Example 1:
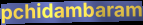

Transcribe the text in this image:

pchidambaram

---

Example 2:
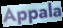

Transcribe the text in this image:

Appala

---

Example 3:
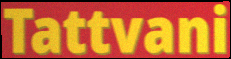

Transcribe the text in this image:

Tattvani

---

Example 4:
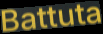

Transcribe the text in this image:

Battuta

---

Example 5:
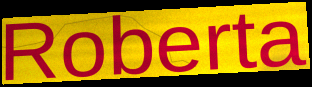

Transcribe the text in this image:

Roberta